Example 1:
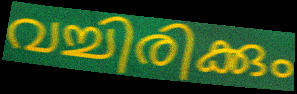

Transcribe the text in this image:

വച്ചിരിക്കും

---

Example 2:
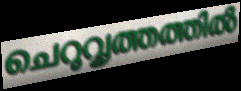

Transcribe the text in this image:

ചെറുവൃത്തത്തിൽ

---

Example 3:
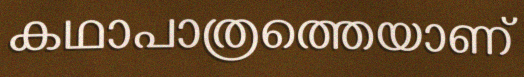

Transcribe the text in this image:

കഥാപാത്രത്തെയാണ്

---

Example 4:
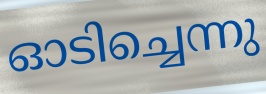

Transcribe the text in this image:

ഓടിച്ചെന്നു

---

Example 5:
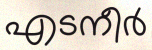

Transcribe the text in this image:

എടനീർ